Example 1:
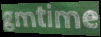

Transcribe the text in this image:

gmtime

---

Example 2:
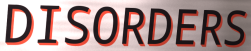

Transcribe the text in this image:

DISORDERS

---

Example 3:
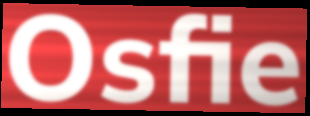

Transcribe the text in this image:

Osfie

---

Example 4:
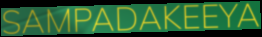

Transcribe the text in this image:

SAMPADAKEEYA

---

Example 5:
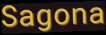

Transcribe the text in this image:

Sagona